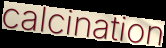
calcination